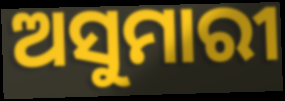
ଅସୁମାରୀ